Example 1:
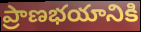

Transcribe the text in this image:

ప్రాణభయానికి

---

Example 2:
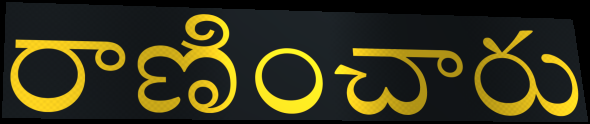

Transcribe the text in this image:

రాణించారు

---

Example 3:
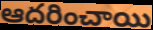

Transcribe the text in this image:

ఆదరించాయి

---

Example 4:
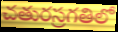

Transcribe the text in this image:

చతురస్రగతిలో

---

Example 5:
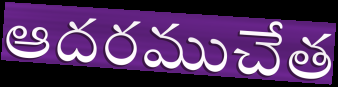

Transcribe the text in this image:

ఆదరముచేత